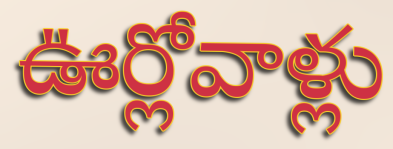
ఊర్లోవాళ్లు